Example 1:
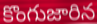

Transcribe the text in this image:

కొంగుజారిన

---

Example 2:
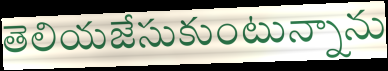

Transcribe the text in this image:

తెలియజేసుకుంటున్నాను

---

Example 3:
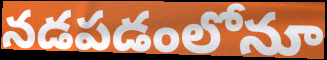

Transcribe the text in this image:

నడపడంలోనూ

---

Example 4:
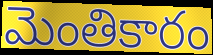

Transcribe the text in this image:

మెంతికారం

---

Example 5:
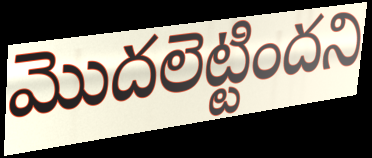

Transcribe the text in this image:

మొదలెట్టిందని